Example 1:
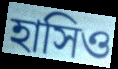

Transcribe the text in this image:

হাসিও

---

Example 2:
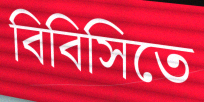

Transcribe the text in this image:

বিবিসিতে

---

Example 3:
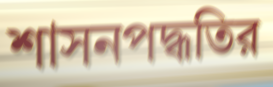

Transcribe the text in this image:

শাসনপদ্ধতির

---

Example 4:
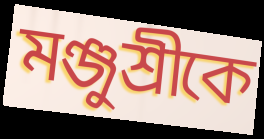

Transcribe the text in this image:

মঞ্জুশ্রীকে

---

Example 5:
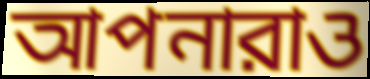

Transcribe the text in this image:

আপনারাও